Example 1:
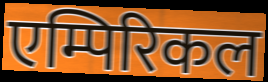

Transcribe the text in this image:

एम्पिरिकल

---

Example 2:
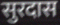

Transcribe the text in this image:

सुरदास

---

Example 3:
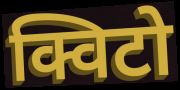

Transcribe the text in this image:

क्विटो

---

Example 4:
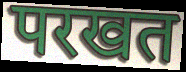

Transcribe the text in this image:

परखत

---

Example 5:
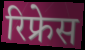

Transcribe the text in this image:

रिफ्रेस